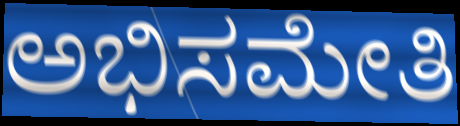
ಅಭಿಸಮೇತಿ